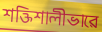
শক্তিশালীভাৱে